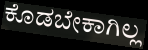
ಕೊಡಬೇಕಾಗಿಲ್ಲ